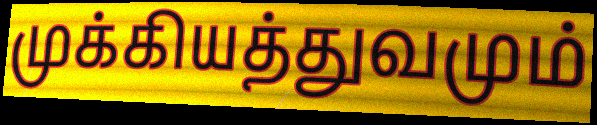
முக்கியத்துவமும்